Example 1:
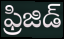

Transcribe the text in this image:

ఫ్రిజిడ్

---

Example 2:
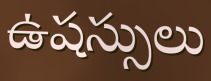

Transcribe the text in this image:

ఉషస్సులు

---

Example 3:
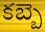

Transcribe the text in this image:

కబ్బె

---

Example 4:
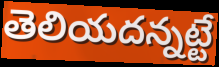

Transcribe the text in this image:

తెలియదన్నట్టే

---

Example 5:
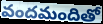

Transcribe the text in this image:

వందమందితో